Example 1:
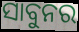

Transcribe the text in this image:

ସାବୁନର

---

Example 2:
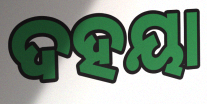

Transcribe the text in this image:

ଦହୟା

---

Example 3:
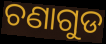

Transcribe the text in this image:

ଚଣାଗୁଡ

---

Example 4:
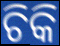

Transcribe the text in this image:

ଚିକି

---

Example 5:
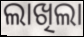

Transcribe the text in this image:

ଲାଖିଲା